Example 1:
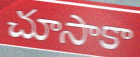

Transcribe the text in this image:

చూసాకా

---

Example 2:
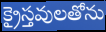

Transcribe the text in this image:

క్రైస్తవులతోను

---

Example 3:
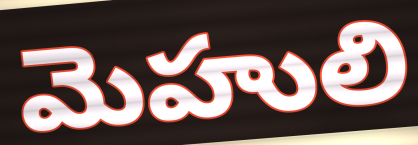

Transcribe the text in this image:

మెహులి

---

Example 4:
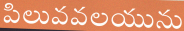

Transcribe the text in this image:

పిలువవలయును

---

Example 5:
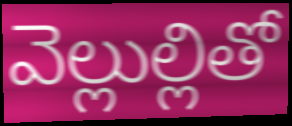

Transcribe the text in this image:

వెల్లుల్లితో